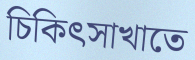
চিকিৎসাখাতে